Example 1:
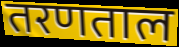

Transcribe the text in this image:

तरणताल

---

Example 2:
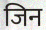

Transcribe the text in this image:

जिन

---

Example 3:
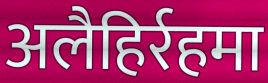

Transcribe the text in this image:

अलैहिर्रहमा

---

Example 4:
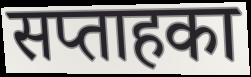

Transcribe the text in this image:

सप्ताहका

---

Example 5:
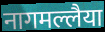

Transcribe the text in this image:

नागमल्लैया